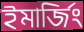
ইমার্জিং